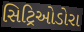
સિટ્રિઓડોરા